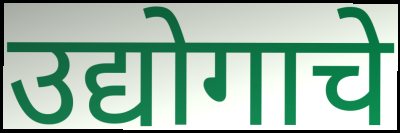
उद्योगाचे